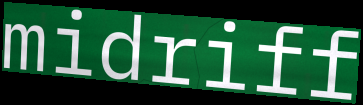
midriff